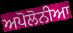
ਅਪੋਲੋਨੀਆ